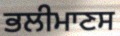
ਭਲੀਮਾਣਸ